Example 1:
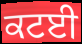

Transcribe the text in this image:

ਕਟਈ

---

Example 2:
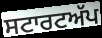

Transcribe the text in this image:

ਸਟਾਰਟਅੱਪ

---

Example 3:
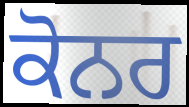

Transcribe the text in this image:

ਕੋਨਰ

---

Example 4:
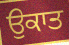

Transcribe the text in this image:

ਉਕਾਤ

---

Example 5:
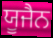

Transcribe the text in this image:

ਯੂਜੈਨ